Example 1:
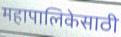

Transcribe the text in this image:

महापालिकेसाठी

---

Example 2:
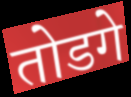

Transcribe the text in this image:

तोडगे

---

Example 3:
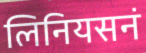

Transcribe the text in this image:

लिनियसनं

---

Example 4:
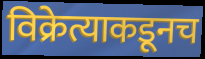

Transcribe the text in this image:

विक्रेत्याकडूनच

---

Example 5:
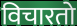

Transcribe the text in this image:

विचारतो